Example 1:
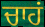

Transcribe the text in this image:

ਚਾਹਂ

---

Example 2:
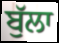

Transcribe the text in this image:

ਬੁੱਲਾ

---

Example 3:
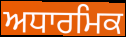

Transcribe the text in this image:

ਅਧਾਰਮਿਕ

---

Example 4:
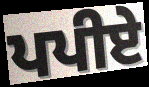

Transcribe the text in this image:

ਪਪੀਏ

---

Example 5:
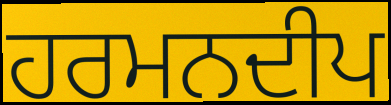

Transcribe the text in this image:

ਹਰਮਨਦੀਪ